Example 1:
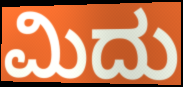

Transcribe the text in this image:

ಮಿದು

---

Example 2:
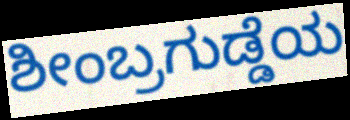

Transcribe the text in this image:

ಶೀಂಬ್ರಗುಡ್ಡೆಯ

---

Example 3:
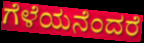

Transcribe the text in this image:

ಗೆಳೆಯನೆಂದರೆ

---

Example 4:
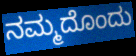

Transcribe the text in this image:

ನಮ್ಮದೊಂದು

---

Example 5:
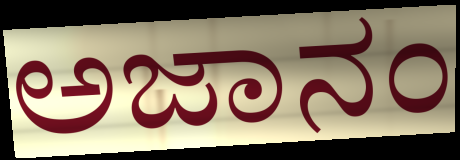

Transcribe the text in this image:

ಅಜಾನಂ